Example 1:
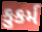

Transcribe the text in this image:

કુકર્મ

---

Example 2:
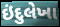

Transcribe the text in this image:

ઇંદુલેખા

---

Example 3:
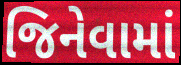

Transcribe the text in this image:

જિનેવામાં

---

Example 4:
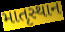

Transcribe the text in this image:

માતૃસ્થાન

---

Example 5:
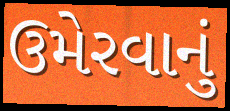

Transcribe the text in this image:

ઉમેરવાનું